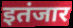
इतंजार